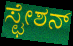
ಸ್ಟೇಶನ್